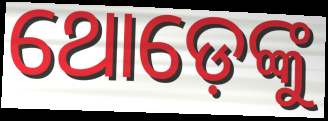
ଥୋଡ଼େଙ୍କୁ